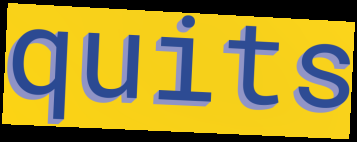
quits